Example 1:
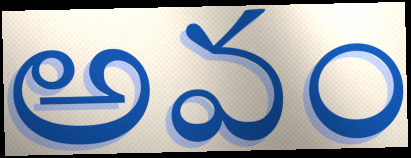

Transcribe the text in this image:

అవం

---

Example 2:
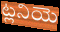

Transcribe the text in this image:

ట్లనియె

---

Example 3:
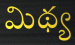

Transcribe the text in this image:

మిథ్య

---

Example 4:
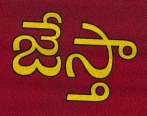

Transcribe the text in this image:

జేస్తా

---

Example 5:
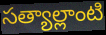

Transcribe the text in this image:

సత్యాల్లాంటి